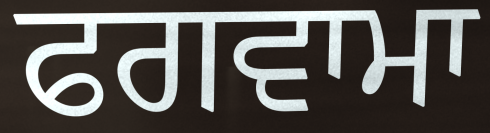
ਫਗਵਾਮਾ